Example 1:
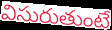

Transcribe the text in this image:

విసురుతుంటే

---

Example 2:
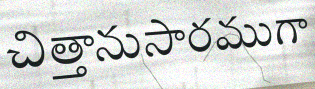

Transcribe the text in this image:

చిత్తానుసారముగా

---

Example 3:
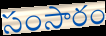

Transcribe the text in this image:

సంసారం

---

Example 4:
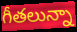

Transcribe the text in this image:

గీతలున్నా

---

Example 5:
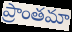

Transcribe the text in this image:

ప్రాంతమా